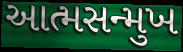
આત્મસન્મુખ